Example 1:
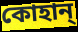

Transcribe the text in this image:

কোহান্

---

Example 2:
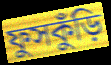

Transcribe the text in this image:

ফুসকুঁড়ি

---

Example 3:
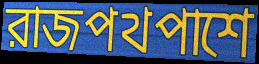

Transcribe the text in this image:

রাজপথপাশে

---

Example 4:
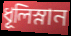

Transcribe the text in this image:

ধূলিস্নান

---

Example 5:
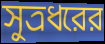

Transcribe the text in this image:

সুত্রধরের